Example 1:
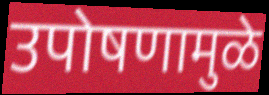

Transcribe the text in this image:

उपोषणामुळे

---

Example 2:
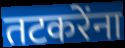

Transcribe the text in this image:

तटकरेंना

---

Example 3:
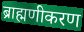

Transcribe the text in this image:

ब्राह्मणीकरण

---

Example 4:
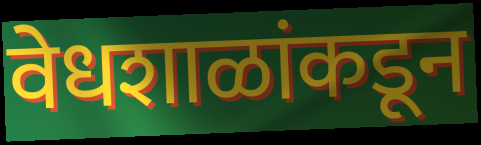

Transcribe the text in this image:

वेधशाळांकडून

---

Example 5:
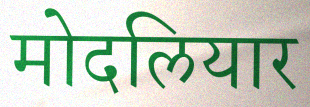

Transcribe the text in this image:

मोदलियार